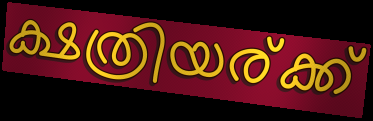
ക്ഷത്രിയര്ക്ക്